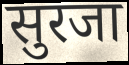
सुरजा